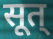
सूत्